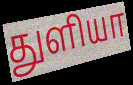
துளியா